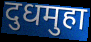
दुधमुहा